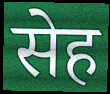
सेह